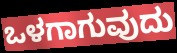
ಒಳಗಾಗುವುದು